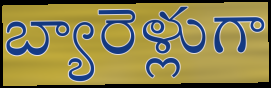
బ్యారెళ్లుగా